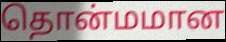
தொன்மமான